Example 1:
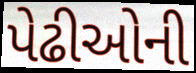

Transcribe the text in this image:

પેઢીઓની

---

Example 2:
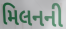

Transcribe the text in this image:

મિલનની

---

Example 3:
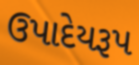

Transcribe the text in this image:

ઉપાદેયરૂપ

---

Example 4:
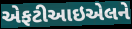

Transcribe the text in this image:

એફટીઆઇએલને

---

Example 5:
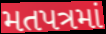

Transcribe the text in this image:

મતપત્રમાં